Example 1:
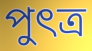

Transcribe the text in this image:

পুৎত্র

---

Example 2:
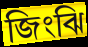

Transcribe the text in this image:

জিংঝি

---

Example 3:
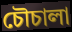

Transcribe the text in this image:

চৌচালা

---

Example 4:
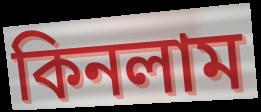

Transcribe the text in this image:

কিনলাম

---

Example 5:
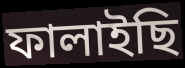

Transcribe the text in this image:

ফালাইছি